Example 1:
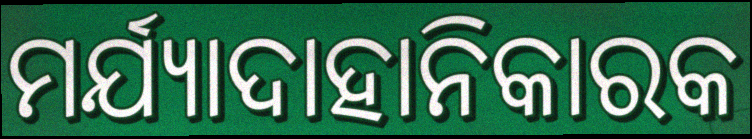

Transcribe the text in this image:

ମର୍ଯ୍ୟାଦାହାନିକାରକ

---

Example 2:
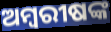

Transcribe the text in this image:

ଅମ୍ବରୀଷଙ୍କ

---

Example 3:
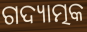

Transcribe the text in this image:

ଗଦ୍ୟାତ୍ମକ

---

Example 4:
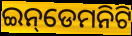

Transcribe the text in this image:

ଇନ୍‌ଡେମନିଟି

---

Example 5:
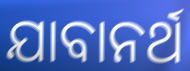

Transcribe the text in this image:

ଯାବାନର୍ଥ